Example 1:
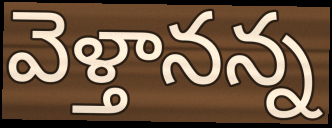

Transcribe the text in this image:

వెళ్తానన్న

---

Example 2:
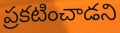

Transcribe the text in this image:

ప్రకటించాడని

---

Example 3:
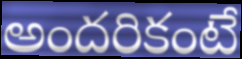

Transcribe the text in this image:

అందరికంటే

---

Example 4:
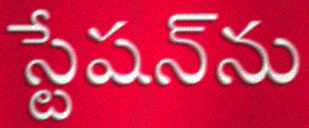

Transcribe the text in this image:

స్టేషన్‌ను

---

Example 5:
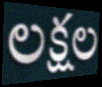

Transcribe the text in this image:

లక్షల